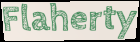
Flaherty